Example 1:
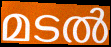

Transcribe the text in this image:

മടൽ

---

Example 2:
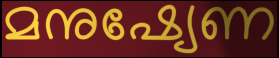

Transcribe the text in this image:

മനുഷ്യേണ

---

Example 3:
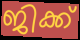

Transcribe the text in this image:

ജിക്ക്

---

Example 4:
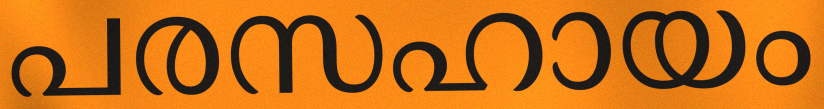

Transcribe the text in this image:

പരസഹായം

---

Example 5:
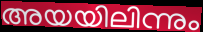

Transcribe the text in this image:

അയയിലിന്നും